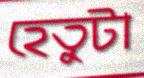
হেতুটা